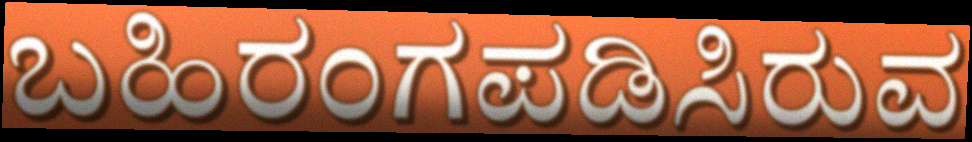
ಬಹಿರಂಗಪಡಿಸಿರುವ